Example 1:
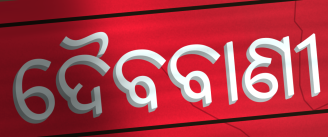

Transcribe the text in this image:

ଦୈବବାଣୀ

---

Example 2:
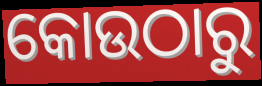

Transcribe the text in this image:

କୋଉଠାରୁ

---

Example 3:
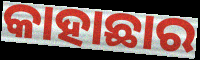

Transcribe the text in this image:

କାହାଛାର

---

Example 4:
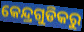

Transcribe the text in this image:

କେନ୍ଦ୍ରଗୁଡିକରୁ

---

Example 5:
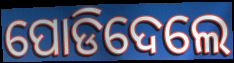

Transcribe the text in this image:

ପୋଡିଦେଲେ